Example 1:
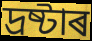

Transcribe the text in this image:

দ্ৰষ্টাৰ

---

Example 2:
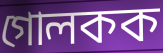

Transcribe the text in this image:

গোলকক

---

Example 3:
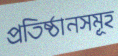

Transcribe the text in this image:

প্ৰতিষ্ঠানসমূহ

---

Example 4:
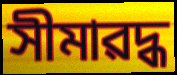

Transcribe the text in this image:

সীমাৱদ্ধ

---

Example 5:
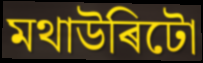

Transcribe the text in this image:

মথাউৰিটো